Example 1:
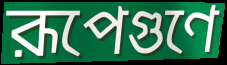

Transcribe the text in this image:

রূপেগুণে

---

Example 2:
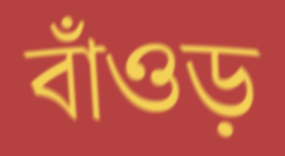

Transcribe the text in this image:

বাঁওড়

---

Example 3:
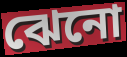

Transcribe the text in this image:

ঝেনো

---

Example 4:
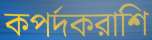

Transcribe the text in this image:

কপর্দকরাশি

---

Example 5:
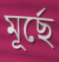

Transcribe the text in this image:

মূর্ছে